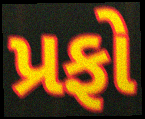
પ્રફો